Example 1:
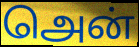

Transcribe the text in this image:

அென்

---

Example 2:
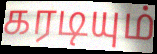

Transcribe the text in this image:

கரடியும்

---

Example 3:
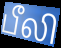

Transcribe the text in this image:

பீலி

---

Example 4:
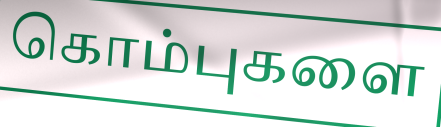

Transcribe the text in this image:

கொம்புகளை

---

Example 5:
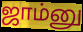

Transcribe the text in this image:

ஜாம்னு